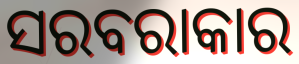
ସରବରାକାର